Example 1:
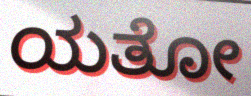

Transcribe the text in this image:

ಯತೋ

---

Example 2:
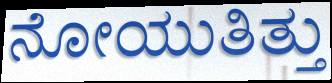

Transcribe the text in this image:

ನೋಯುತಿತ್ತು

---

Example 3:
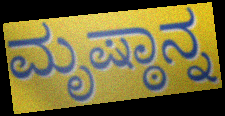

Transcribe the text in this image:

ಮೃಷ್ಠಾನ್ನ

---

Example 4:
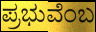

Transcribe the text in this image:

ಪ್ರಭುವೆಂಬ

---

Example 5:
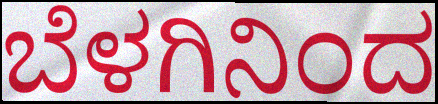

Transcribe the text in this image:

ಬೆಳಗಿನಿಂದ